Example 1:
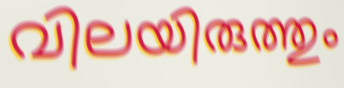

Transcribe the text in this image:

വിലയിരുത്തും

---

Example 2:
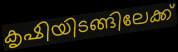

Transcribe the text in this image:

കൃഷിയിടങ്ങിലേക്ക്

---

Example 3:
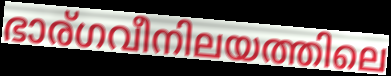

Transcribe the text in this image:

ഭാര്ഗവീനിലയത്തിലെ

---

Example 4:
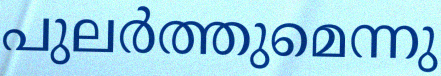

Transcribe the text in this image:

പുലർത്തുമെന്നു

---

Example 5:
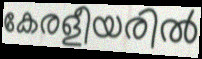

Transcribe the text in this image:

കേരളീയരിൽ